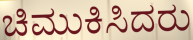
ಚಿಮುಕಿಸಿದರು